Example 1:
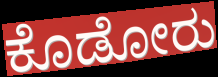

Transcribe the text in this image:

ಕೊಡೋರು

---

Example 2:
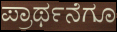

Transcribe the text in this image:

ಪ್ರಾರ್ಥನೆಗೂ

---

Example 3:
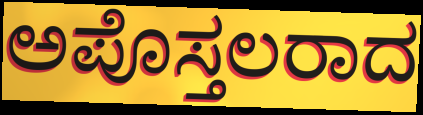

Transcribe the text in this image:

ಅಪೊಸ್ತಲರಾದ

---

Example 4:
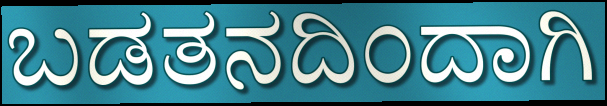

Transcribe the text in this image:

ಬಡತನದಿಂದಾಗಿ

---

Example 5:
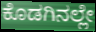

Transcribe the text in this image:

ಕೊಡಗಿನಲ್ಲೇ